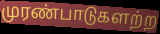
முரண்பாடுகளற்ற